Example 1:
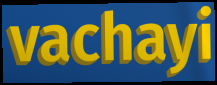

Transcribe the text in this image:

vachayi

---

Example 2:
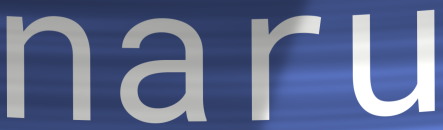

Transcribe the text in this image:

naru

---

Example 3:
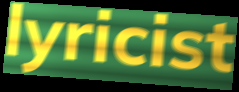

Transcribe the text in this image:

lyricist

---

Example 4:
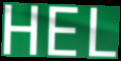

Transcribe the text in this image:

HEL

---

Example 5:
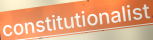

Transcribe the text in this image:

constitutionalist